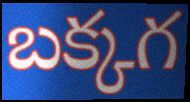
బక్కగ